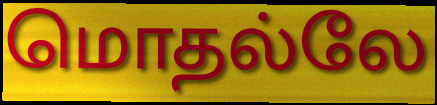
மொதல்லே